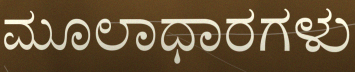
ಮೂಲಾಧಾರಗಳು